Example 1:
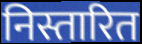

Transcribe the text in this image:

निस्तारित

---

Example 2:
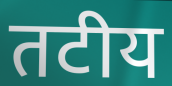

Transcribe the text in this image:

तटीय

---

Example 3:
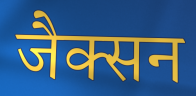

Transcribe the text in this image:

जैक्सन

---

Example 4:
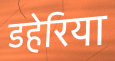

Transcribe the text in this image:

डहेरिया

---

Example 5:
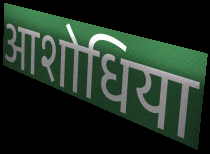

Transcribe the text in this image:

आशोधिया